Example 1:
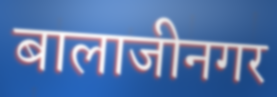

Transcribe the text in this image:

बालाजीनगर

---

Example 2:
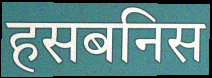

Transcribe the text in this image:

हसबनिस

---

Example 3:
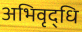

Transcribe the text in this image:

अभिवृद्धि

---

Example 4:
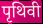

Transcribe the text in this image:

पृथिवी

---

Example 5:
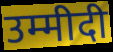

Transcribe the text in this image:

उम्मीदी